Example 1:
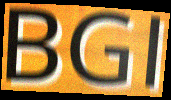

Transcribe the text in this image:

BGI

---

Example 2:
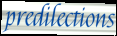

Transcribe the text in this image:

predilections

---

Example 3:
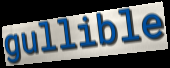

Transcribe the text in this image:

gullible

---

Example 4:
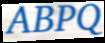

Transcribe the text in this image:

ABPQ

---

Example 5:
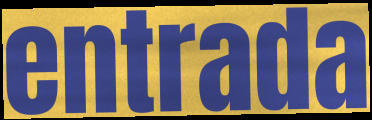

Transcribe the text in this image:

entrada